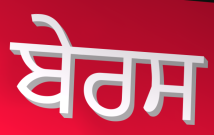
ਬੇਰਸ